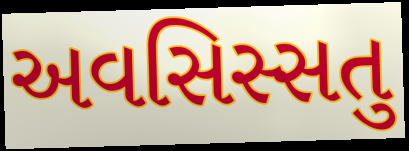
અવસિસ્સતુ